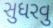
સુધરવુ